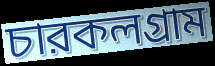
চারকলগ্রাম